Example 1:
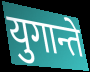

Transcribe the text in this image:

युगान्ते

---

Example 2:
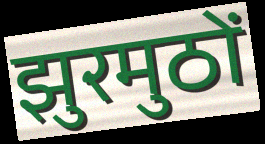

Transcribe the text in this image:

झुरमुठों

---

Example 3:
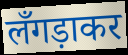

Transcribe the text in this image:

लँगड़ाकर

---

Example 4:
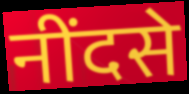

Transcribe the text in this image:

नींदसे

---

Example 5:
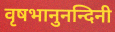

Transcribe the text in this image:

वृषभानुनन्दिनी